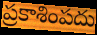
ప్రకాశింపదు